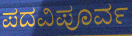
ಪದವಿಪೂರ್ವ